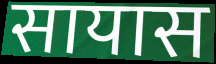
सायास